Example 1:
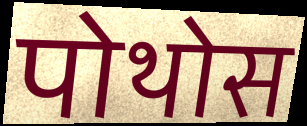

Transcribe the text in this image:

पोथोस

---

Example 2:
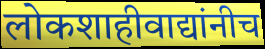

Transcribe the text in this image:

लोकशाहीवाद्यांनीच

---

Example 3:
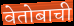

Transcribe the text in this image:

वेतोबाची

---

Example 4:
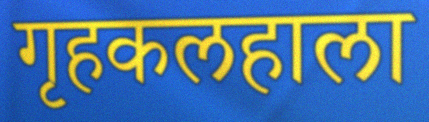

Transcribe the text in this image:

गृहकलहाला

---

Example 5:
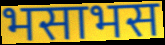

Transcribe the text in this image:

भसाभस